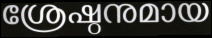
ശ്രേഷ്ഠനുമായ